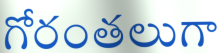
గోరంతలుగా